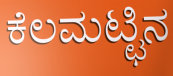
ಕೆಲಮಟ್ಟಿನ